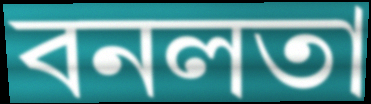
বনলতা